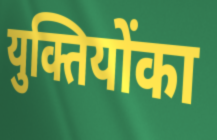
युक्तियोंका